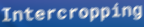
Intercropping